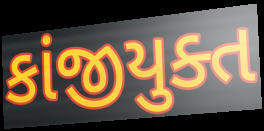
કાંજીયુક્ત